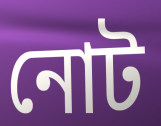
নোট